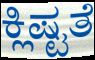
ಕ್ಲಿಷ್ಟತೆ